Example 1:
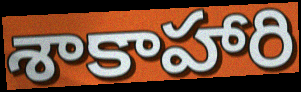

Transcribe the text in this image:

శాకాహారి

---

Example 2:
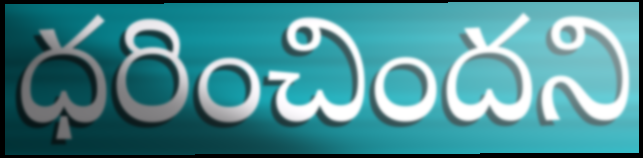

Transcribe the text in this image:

ధరించిందని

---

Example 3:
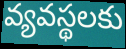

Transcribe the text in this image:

వ్యవస్థలకు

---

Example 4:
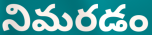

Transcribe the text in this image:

నిమరడం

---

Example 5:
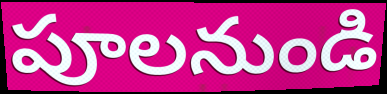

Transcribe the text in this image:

పూలనుండి